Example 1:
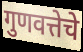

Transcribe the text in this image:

गुणवत्तेचे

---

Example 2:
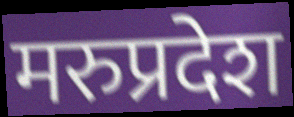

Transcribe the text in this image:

मरुप्रदेश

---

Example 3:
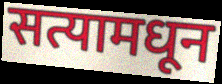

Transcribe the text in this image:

सत्यामधून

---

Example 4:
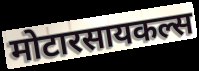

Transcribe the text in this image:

मोटारसायकल्स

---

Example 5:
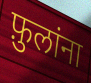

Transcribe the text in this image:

फ़ुलांना